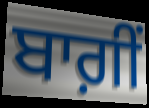
ਬਾਗ਼ੀਂ